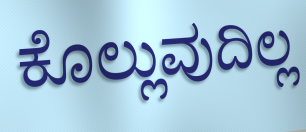
ಕೊಲ್ಲುವುದಿಲ್ಲ